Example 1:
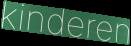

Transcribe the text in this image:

kinderen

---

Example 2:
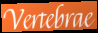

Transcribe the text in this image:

Vertebrae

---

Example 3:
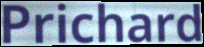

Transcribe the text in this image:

Prichard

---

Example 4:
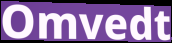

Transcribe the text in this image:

Omvedt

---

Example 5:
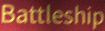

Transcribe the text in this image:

Battleship